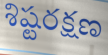
శిష్టరక్షణ